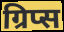
ग्रिप्स